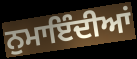
ਨੁਮਾਇੰਦੀਆਂ